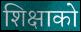
शिक्षाको